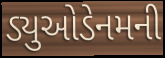
ડ્યુઓડેનમની